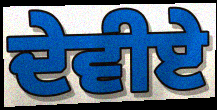
ਦੇਵੀਏ